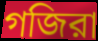
গজিরা